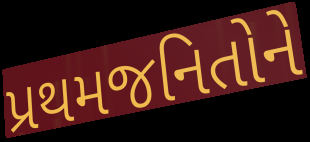
પ્રથમજનિતોને